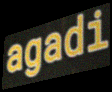
agadi